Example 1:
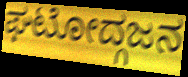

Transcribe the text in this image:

ಘಟೋದ್ಗಜನ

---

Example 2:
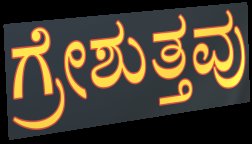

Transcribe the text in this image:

ಗ್ರೇಶುತ್ತವು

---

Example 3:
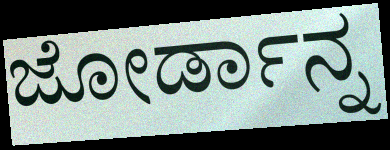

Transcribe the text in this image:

ಜೋರ್ಡಾನ್ನ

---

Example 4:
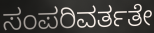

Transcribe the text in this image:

ಸಂಪರಿವರ್ತತೇ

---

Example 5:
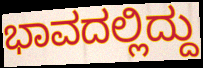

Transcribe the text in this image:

ಭಾವದಲ್ಲಿದ್ದು